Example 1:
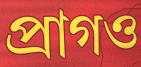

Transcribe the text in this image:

প্রাগও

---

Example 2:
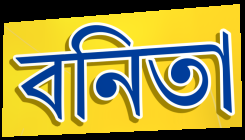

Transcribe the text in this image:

বনিতা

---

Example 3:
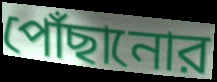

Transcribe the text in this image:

পোঁছানোর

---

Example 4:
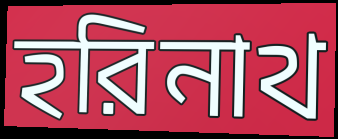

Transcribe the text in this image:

হরিনাথ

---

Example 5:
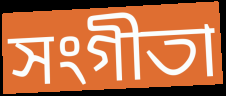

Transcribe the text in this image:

সংগীতা